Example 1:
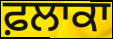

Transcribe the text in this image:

ਫ਼ਲਾਕਾ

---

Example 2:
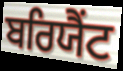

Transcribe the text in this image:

ਬਰਿਯੈਂਟ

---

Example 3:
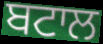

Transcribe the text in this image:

ਬਟਾਲ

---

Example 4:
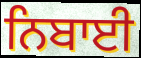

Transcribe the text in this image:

ਨਿਬਾਈ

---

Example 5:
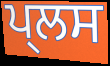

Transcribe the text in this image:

ਪ੍ਲਸ